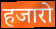
हजारो